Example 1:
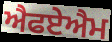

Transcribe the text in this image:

ਐਫਏਐਮ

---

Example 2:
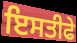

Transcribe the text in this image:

ਇਸਤੀਫੇ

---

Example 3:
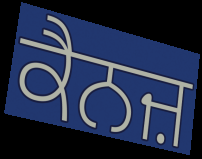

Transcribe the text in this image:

ਕੈਨਜ਼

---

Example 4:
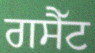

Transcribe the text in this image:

ਗਸੈੱਟ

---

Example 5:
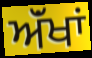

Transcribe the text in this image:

ਅੱਂਖਾਂ